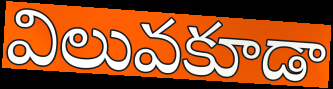
విలువకూడా